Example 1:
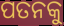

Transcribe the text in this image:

ପତନକୁ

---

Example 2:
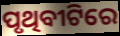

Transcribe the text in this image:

ପୃଥିବୀଟିରେ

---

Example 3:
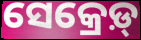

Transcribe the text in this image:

ସେକ୍ରେଡ଼୍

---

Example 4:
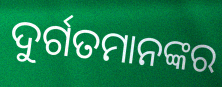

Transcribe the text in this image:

ଦୁର୍ଗତମାନଙ୍କର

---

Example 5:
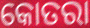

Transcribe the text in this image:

କୋତରା